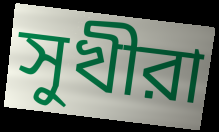
সুখীরা